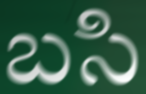
బసి